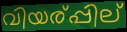
വിയര്പ്പില്